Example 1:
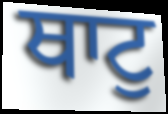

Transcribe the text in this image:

ਥਾਟੁ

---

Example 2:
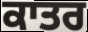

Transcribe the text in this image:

ਕਾਤਰ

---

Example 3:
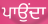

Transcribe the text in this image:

ਪਾਉਂਦਾ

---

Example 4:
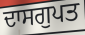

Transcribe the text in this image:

ਦਾਸਗੁਪਤ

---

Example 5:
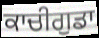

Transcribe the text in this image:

ਕਾਚੀਗੁਡਾ